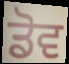
ਡੋਵ